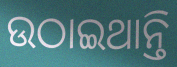
ଉଠାଇଥାନ୍ତି